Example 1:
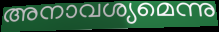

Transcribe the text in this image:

അനാവശ്യമെന്നു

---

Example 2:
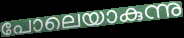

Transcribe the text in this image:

പോലെയാകുന്നു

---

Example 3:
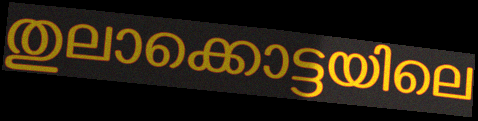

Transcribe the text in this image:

തുലാക്കൊട്ടയിലെ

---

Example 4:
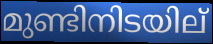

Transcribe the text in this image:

മുണ്ടിനിടയില്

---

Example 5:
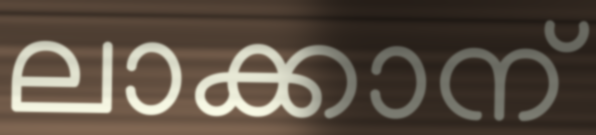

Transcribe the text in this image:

ലാക്കാന്